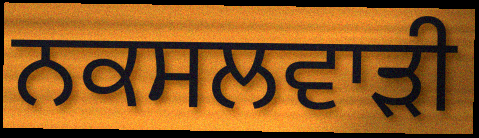
ਨਕਸਲਵਾੜੀ